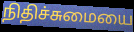
நிதிச்சுமையை